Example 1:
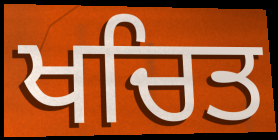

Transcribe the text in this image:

ਖਚਿਤ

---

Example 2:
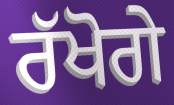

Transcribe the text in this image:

ਰੱਖੋਗੇ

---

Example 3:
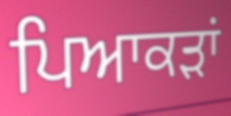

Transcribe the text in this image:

ਪਿਆਕੜਾਂ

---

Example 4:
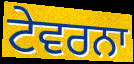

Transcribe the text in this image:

ਟੇਵਰਨਾ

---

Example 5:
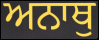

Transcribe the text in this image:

ਅਨਾਥੁ